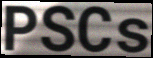
PSCs